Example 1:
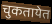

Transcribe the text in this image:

चुकतायेत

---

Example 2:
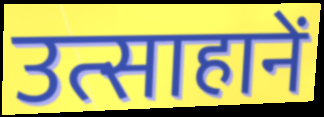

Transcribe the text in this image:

उत्साहानें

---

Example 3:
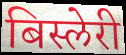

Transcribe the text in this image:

बिस्लेरी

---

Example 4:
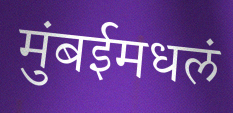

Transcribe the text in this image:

मुंबईमधलं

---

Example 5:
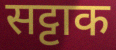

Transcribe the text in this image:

सट्टाक